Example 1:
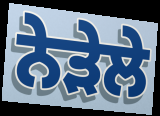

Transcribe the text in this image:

ਨੇੜੇਲੇ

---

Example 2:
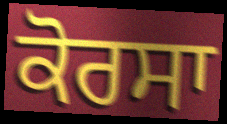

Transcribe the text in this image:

ਕੋਰਸਾ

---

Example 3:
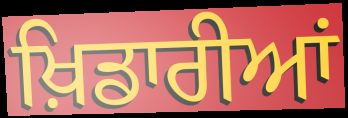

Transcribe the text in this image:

ਖ਼ਿਡਾਰੀਆਂ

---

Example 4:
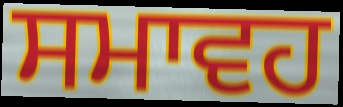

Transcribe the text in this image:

ਸਮਾਵਹ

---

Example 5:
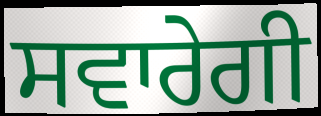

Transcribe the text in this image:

ਸਵਾਰੇਗੀ